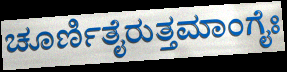
ಚೂರ್ಣಿತೈರುತ್ತಮಾಂಗೈಃ